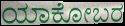
ಯಾಕೋಬರ